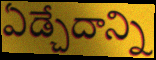
ఏడ్చేదాన్ని